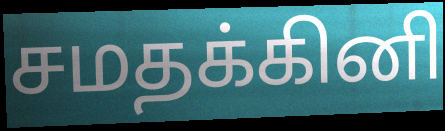
சமதக்கினி